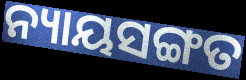
ନ୍ୟାୟସଙ୍ଗତ